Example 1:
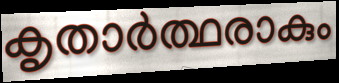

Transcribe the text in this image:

കൃതാർത്ഥരാകും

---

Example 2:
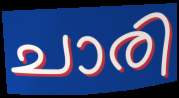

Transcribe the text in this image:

ചാരി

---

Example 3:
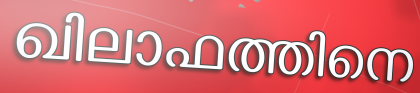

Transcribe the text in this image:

ഖിലാഫത്തിനെ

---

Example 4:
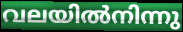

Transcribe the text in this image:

വലയിൽനിന്നു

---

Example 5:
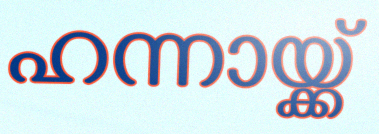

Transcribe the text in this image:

ഹന്നായ്ക്ക്